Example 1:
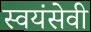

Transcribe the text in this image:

स्वयंसेवी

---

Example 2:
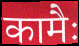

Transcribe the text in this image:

कामैः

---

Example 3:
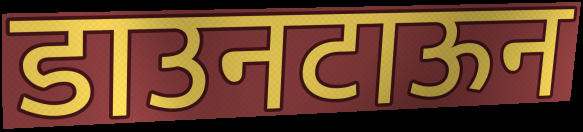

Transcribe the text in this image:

डाउनटाऊन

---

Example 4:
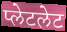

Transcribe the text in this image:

प्लेटलेट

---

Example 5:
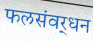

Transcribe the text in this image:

फलसंवर्धन